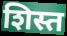
शिस्त